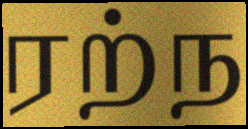
ரற்ந